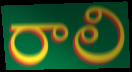
రాలి